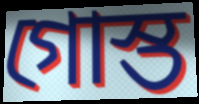
গোস্ত